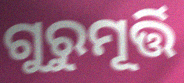
ଗୁରୁମୂର୍ତ୍ତି